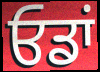
ਓਡਾਂ